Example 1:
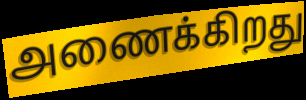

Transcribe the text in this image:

அணைக்கிறது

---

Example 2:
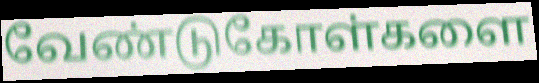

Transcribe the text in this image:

வேண்டுகோள்களை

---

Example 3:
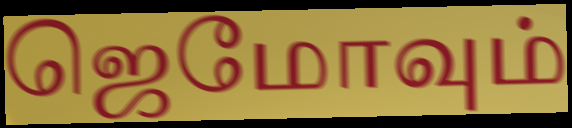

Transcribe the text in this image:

ஜெமோவும்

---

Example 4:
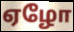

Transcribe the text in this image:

ஏழோ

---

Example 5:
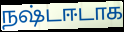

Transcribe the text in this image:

நஷ்டஈடாக